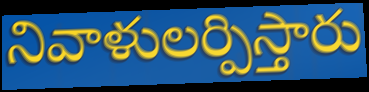
నివాళులర్పిస్తారు